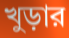
খুড়ার